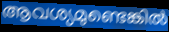
ആവശ്യമുണ്ടെങ്കിൽ